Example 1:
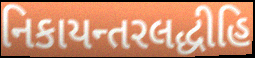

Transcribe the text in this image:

નિકાયન્તરલદ્ધીહિ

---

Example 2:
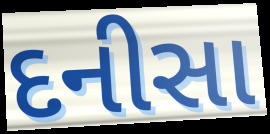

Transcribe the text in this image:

દનીસા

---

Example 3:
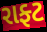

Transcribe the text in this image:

રાફ્ટ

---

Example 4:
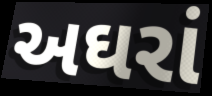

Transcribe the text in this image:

અઘરાં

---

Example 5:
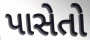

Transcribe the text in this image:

પાસેતો